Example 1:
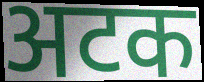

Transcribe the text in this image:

अटक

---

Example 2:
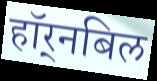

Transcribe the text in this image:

हॉर्नबिल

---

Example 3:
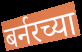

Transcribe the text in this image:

बर्नरच्या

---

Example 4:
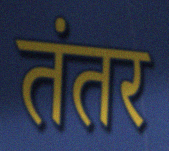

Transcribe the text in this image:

तंतर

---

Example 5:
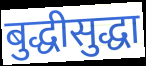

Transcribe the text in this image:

बुद्धीसुद्धा